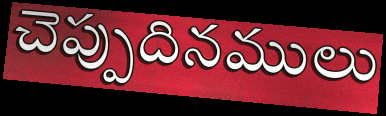
చెప్పుదినములు